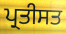
ਪ੍ਰਤੀਸਤ